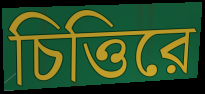
চিত্তিরে